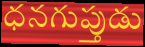
ధనగుప్తుడు